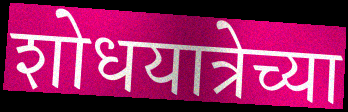
शोधयात्रेच्या